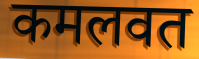
कमलवत